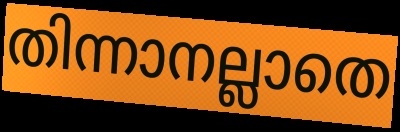
തിന്നാനല്ലാതെ